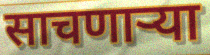
साचणार्‍या